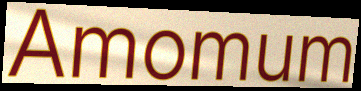
Amomum